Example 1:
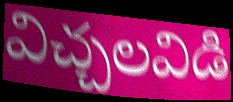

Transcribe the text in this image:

విచ్చలవిడి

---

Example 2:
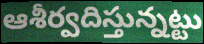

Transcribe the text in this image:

ఆశీర్వదిస్తున్నట్టు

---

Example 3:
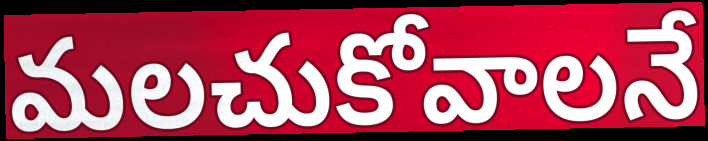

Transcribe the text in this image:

మలచుకోవాలనే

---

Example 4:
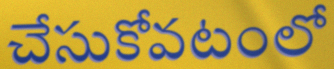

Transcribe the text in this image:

చేసుకోవటంలో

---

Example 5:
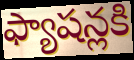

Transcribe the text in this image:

ఫ్యాషన్లకి